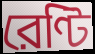
রেণ্টি